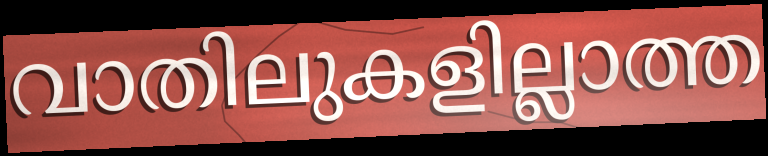
വാതിലുകളില്ലാത്ത